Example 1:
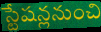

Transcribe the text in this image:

స్టేషన్లనుంచి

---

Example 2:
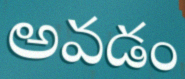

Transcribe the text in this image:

అవడం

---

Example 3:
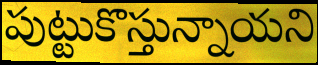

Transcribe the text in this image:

పుట్టుకొస్తున్నాయని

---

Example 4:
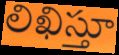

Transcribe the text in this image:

లిఖిస్తూ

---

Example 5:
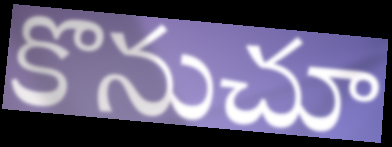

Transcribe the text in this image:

కొనుచూ